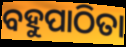
ବହୁପାଠିତା